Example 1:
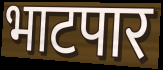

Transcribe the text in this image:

भाटपार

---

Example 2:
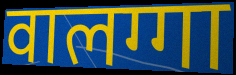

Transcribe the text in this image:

वालग्गा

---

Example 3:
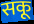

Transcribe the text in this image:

सकू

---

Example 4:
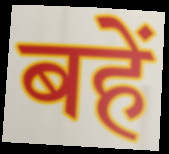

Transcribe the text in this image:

बहें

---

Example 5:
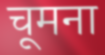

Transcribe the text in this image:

चूमना